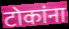
टोकांना